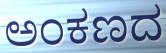
ಅಂಕಣದ